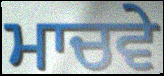
ਮਾਚਵੇ